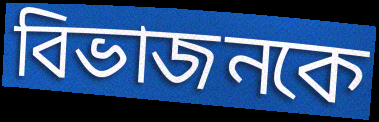
বিভাজনকে